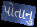
પોતાનુ